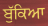
ਬੁੱਕਿਆ